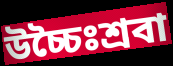
উচ্চৈঃশ্রবা